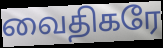
வைதிகரே